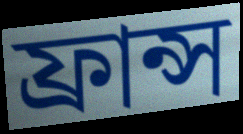
ফ্রান্স